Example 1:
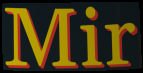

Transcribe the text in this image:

Mir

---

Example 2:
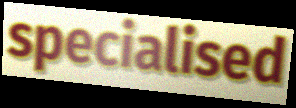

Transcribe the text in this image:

specialised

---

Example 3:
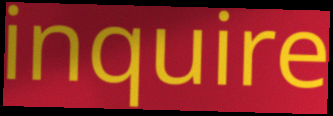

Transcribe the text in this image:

inquire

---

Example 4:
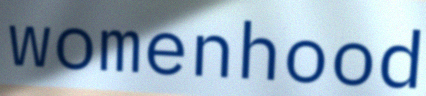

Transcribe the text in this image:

womenhood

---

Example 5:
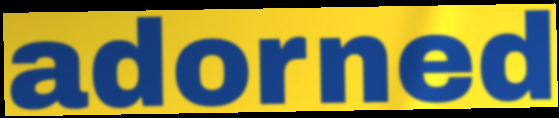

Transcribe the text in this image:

adorned